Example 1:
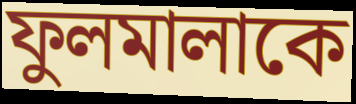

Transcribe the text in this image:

ফুলমালাকে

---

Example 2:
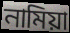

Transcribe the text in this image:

নামিয়া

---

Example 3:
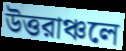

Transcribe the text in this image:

উত্তরাঞ্চলে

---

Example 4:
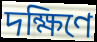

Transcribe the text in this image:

দক্ষিণে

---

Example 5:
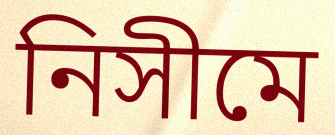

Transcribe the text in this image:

নিসীমে